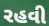
રહવી